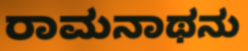
ರಾಮನಾಥನು